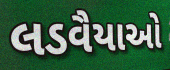
લડવૈયાઓ